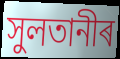
সুলতানীৰ